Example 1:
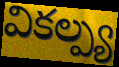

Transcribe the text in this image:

వికల్ప్య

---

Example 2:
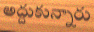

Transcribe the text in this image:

అద్దుకున్నారు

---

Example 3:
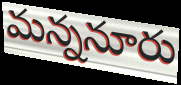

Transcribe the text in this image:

మన్ననూరు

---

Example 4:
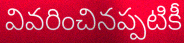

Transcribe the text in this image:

వివరించినప్పటికీ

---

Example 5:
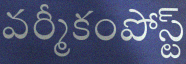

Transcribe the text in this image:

వర్మీకంపోస్ట్